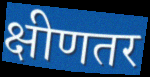
क्षीणतर